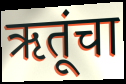
ऋतूंचा